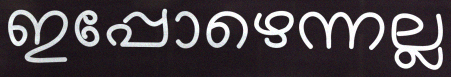
ഇപ്പോഴെന്നല്ല